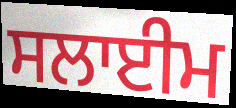
ਸਲਾਈਮ